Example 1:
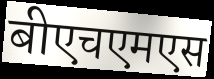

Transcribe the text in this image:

बीएचएमएस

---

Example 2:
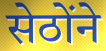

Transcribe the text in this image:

सेठोंने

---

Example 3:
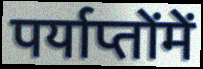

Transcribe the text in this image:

पर्याप्तोंमें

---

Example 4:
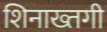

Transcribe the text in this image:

शिनाख्तगी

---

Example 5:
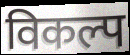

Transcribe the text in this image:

विकल्प